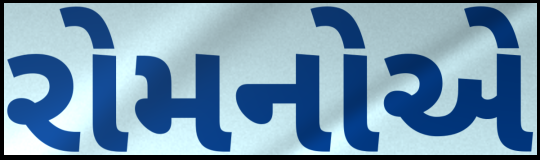
રોમનોએ